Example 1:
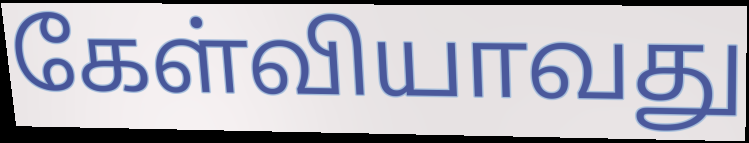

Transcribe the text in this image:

கேள்வியாவது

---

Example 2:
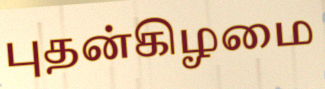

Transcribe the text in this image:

புதன்கிழமை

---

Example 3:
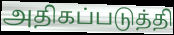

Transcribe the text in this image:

அதிகப்படுத்தி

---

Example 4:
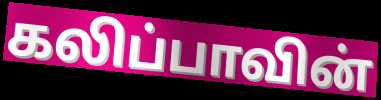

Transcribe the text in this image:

கலிப்பாவின்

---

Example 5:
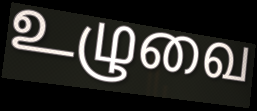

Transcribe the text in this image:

உழுவை